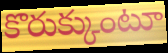
కొరుక్కుంటూ